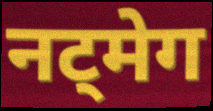
नट्मेग